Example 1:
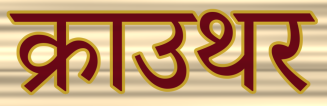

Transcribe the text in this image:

क्राउथर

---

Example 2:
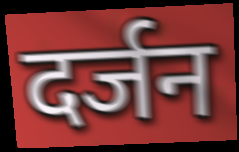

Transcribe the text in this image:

दर्जन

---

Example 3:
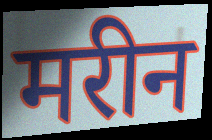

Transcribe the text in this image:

मरीन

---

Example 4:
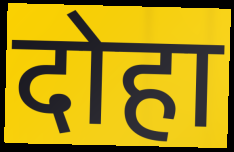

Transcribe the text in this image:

दोहा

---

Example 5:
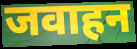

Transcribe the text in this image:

जवाहन